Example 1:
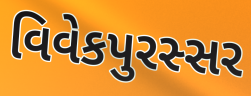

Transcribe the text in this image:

વિવેકપુરસ્સર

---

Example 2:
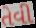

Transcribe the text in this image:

તેવી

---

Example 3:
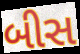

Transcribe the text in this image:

બીસ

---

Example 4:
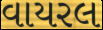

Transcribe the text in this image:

વાયરલ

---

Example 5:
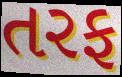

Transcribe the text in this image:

તરફ